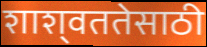
शाश्वततेसाठी